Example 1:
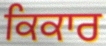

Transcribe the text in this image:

ਕਿਕਾਰ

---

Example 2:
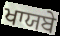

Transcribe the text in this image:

ਖਾਯਬੇ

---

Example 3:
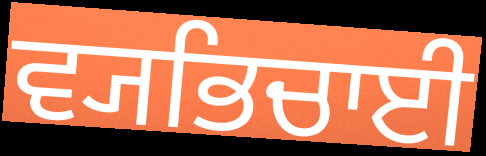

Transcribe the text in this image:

ਵ੍ਯਭਿਚਾਈ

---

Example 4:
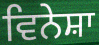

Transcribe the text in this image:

ਵਿਨੇਸ਼ਾ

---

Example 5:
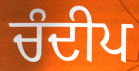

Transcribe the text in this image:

ਚੰਦੀਪ